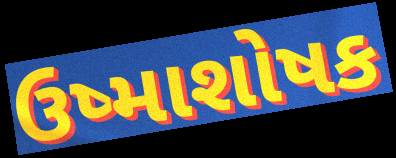
ઉષ્માશોષક